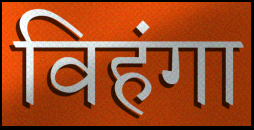
विहंगा